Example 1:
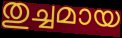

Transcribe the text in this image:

തുച്ചമായ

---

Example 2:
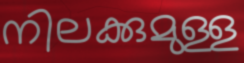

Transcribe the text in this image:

നിലക്കുമുള്ള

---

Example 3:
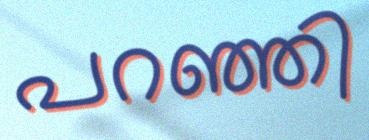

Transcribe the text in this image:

പറഞ്ഞി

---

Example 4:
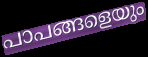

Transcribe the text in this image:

പാപങ്ങളെയും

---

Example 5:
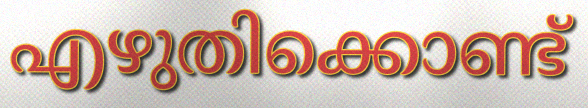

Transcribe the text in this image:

എഴുതിക്കൊണ്ട്